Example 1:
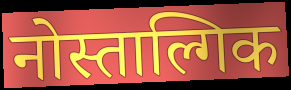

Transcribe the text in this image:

नोस्ताल्गिक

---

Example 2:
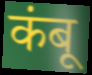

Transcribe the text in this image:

कंबू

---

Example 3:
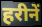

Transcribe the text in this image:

हरीनें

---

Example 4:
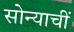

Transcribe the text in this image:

सोन्याचीं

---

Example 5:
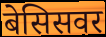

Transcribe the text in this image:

बेसिसवर